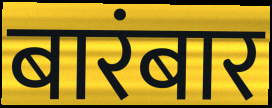
बारंबार